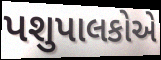
પશુપાલકોએ